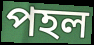
পহল